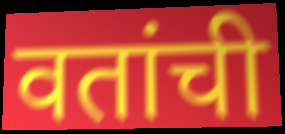
वतांची